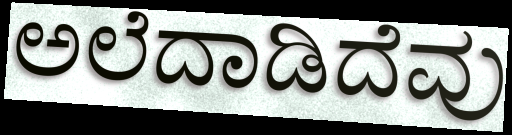
ಅಲೆದಾಡಿದೆವು